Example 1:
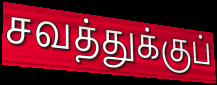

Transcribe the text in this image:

சவத்துக்குப்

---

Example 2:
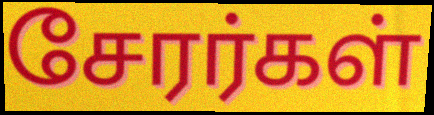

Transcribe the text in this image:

சேரர்கள்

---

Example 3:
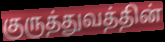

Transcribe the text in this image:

குருத்துவத்தின்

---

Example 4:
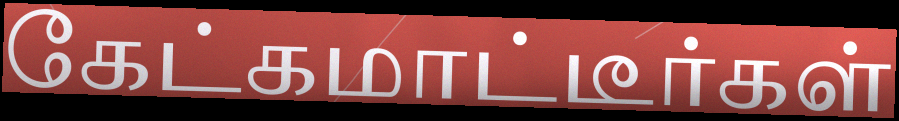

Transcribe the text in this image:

கேட்கமாட்டீர்கள்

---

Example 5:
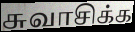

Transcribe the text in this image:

சுவாசிக்க